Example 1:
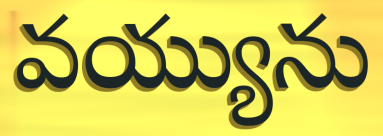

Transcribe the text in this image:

వయ్యును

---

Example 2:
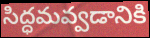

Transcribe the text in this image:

సిద్ధమవ్వడానికి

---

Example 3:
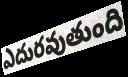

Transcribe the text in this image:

ఎదురవుతుంది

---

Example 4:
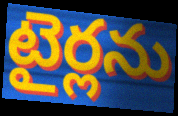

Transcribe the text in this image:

టైర్లను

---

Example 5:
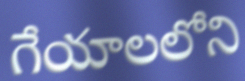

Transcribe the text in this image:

గేయాలలోని